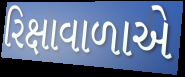
રિક્ષાવાળાએ